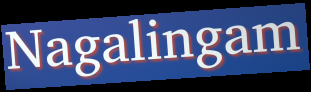
Nagalingam